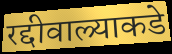
रद्दीवाल्याकडे